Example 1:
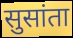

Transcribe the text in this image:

सुसांता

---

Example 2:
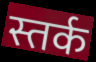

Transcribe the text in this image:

स्तर्क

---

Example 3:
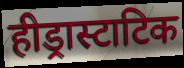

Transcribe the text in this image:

हीड्रास्टाटिक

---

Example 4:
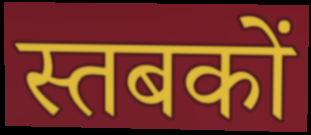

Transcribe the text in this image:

स्तबकों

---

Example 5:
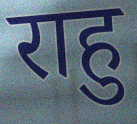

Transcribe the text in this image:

राहु